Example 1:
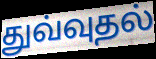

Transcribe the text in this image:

துவ்வுதல்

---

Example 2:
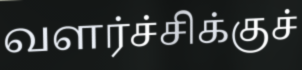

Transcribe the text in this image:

வளர்ச்சிக்குச்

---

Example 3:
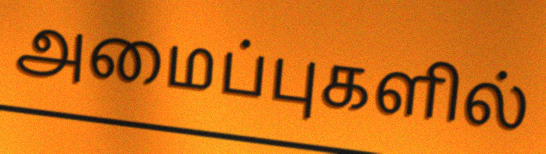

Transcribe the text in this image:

அமைப்புகளில்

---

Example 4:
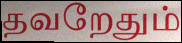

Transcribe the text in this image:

தவறேதும்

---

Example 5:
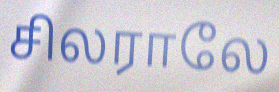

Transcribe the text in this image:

சிலராலே